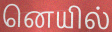
னெயில்